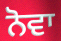
ਨੋਵਾ